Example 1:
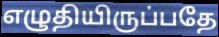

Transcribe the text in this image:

எழுதியிருப்பதே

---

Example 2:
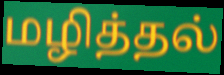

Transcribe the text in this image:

மழித்தல்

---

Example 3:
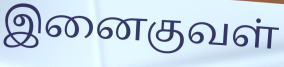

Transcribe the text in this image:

இனைகுவள்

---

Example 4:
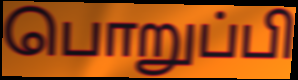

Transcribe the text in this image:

பொறுப்பி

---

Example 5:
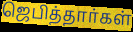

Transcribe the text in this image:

ஜெபித்தார்கள்